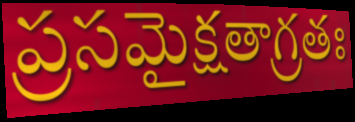
ప్రసమైక్షతాగ్రతః